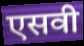
एसवी